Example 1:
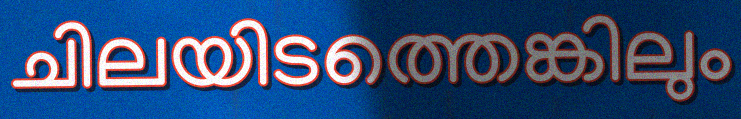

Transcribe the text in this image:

ചിലയിടത്തെങ്കിലും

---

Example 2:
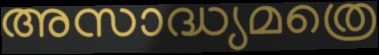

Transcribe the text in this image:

അസാദ്ധ്യമത്രെ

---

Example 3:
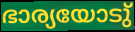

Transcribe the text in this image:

ഭാര്യയോടു്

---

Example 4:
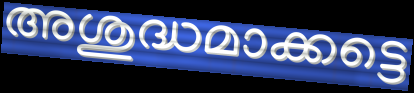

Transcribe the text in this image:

അശുദ്ധമാക്കട്ടെ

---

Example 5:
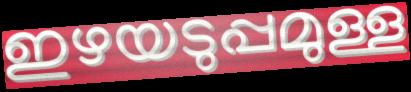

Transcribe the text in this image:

ഇഴയടുപ്പമുള്ള